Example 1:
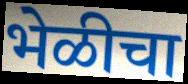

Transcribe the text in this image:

भेळीचा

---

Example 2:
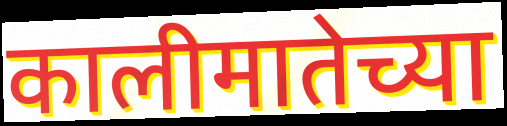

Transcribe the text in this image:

कालीमातेच्या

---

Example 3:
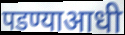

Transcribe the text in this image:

पडण्याआधी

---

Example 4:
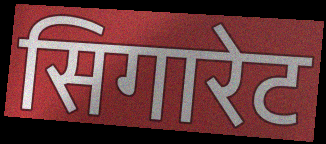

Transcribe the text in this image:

सिगारेट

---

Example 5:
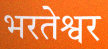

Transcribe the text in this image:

भरतेश्वर